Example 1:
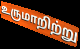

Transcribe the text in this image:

உருமாறிற்று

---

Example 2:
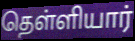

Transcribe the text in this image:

தெள்ளியார்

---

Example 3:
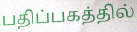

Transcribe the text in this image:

பதிப்பகத்தில்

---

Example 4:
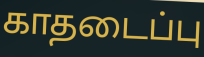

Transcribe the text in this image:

காதடைப்பு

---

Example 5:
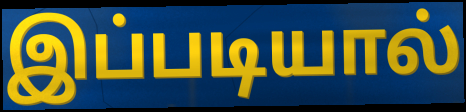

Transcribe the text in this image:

இப்படியால்